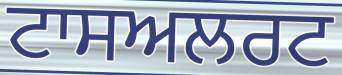
ਟਾਸਅਲਰਟ